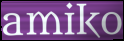
amiko